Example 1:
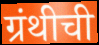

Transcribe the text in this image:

ग्रंथीची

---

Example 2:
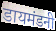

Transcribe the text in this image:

डायमंडनी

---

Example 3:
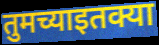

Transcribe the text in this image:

तुमच्याइतक्या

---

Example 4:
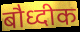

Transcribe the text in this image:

बौध्दीक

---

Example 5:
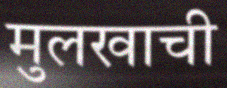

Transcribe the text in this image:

मुलखाची